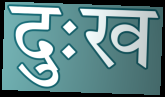
दुःख